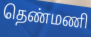
தெண்மணி